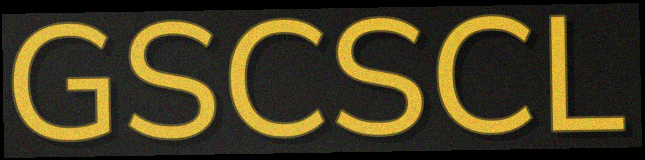
GSCSCL